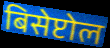
बिसेप्टोल